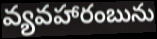
వ్యవహారంబును